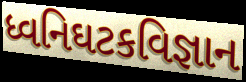
ધ્વનિઘટકવિજ્ઞાન